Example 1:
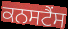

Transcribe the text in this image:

ਕਨਸਟੈਂਸ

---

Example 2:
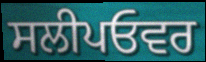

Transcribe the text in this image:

ਸਲੀਪਓਵਰ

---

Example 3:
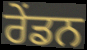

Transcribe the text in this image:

ਰੇਂਡਨ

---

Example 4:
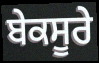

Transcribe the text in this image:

ਬੇਕਸੂਰੇ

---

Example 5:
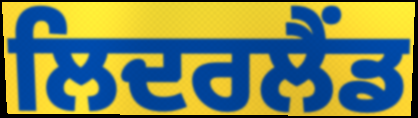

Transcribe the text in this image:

ਲਿਦਰਲੈਂਡ